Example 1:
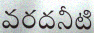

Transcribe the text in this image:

వరదనీటి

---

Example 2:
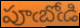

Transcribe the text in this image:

పూఁబోఁడి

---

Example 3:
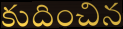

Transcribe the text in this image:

కుదించిన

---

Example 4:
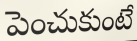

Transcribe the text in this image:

పెంచుకుంటే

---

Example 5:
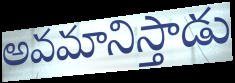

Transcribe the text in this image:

అవమానిస్తాడు